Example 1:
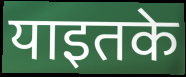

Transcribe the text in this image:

याइतके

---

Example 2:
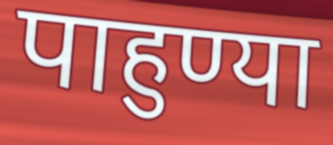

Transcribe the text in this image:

पाहुण्या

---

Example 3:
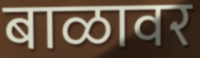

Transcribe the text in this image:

बाळावर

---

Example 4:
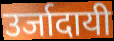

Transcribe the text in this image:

उर्जादायी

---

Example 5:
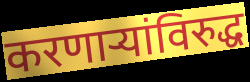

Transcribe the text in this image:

करणाऱ्यांविरुद्ध